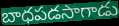
బాధపడసాగాడు